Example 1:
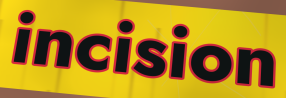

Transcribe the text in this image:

incision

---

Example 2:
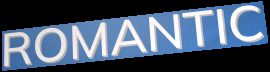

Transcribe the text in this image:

ROMANTIC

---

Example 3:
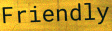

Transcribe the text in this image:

Friendly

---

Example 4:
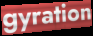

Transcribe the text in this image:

gyration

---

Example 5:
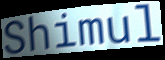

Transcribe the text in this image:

Shimul